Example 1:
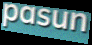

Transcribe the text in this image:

pasun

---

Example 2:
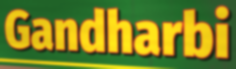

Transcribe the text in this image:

Gandharbi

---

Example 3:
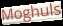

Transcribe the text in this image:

Moghuls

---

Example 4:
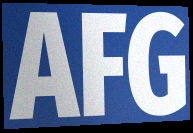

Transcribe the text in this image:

AFG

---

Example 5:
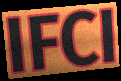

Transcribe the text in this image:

IFCI